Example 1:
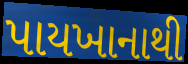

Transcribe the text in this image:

પાયખાનાથી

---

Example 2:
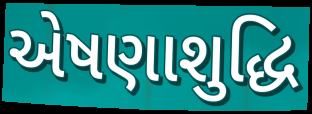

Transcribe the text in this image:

એષણાશુદ્ધિ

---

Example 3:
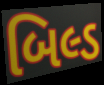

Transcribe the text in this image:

બિલ્ડ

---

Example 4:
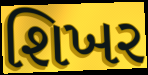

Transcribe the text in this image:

શિખર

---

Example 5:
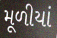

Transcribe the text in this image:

મૂળીયાં